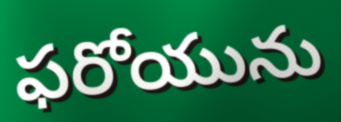
ఫరోయును